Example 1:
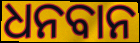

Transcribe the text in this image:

ଧନବାନ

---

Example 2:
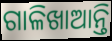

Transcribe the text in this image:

ଗାଳିଖାଆନ୍ତି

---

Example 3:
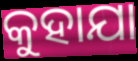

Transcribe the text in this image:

କୁହାଯା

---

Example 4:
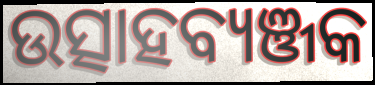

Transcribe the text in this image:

ଉତ୍ସାହବ୍ୟଞ୍ଜକ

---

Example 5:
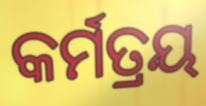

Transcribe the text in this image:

କର୍ମତ୍ରୟ